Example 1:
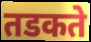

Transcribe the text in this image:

तडकते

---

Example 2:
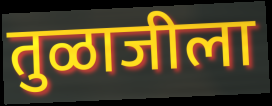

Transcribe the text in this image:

तुळाजीला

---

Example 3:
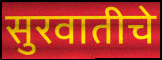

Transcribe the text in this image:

सुरवातीचे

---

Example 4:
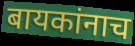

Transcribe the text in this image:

बायकांनाच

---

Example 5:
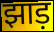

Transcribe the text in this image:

झाड़